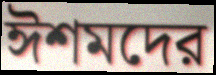
ঈশমদের